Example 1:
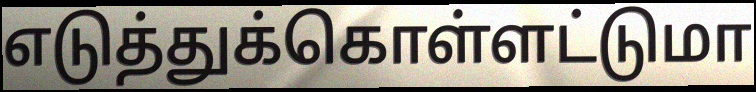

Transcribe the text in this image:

எடுத்துக்கொள்ளட்டுமா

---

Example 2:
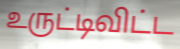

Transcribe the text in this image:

உருட்டிவிட்ட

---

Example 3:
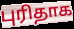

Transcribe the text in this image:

புரிதாக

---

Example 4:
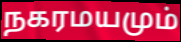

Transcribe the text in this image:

நகரமயமும்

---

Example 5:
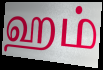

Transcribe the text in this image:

ஹம்